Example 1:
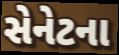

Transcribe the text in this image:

સેનેટના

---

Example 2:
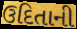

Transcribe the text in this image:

ઉદિતાની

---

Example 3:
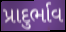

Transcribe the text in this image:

પ્રાદુર્ભાવ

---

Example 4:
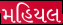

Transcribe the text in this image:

મહિયલ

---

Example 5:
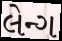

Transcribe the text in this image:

લેન્ગ